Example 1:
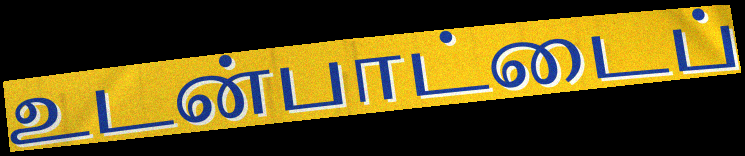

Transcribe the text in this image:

உடன்பாட்டைப்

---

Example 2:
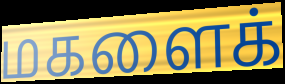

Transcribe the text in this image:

மகளைக்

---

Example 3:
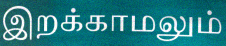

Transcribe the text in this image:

இறக்காமலும்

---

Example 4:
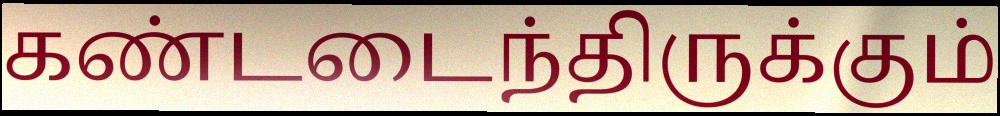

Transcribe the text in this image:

கண்டடைந்திருக்கும்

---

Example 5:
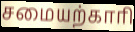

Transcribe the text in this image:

சமையற்காரி